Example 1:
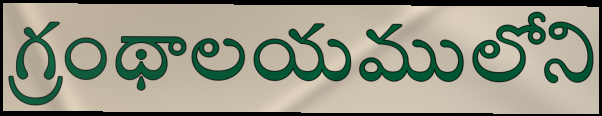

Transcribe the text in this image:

గ్రంథాలయములోని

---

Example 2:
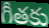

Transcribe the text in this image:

గీతకు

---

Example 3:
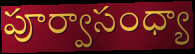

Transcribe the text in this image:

పూర్వాసంధ్యా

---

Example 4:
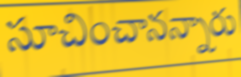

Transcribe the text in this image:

సూచించానన్నారు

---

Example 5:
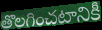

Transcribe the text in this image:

తొలగించటానికీ